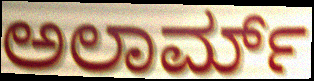
ಅಲಾರ್ಮ್